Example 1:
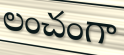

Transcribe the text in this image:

లంచంగా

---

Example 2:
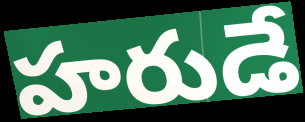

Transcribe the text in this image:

హరుడే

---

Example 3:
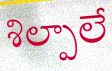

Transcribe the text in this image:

శిల్పాలే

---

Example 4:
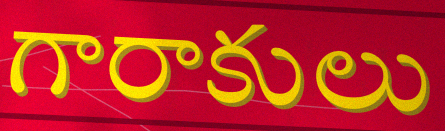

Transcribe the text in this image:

గారాకులు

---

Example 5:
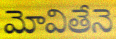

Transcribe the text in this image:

మోవితేనె